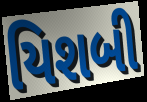
યિશબી